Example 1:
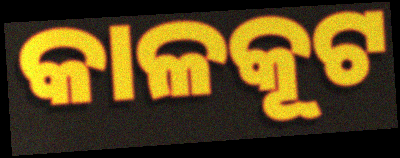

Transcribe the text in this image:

କାଳକୂଟ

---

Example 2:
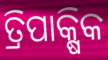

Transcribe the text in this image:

ତ୍ରିପାକ୍ଷିକ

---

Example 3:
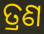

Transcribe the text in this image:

ତ୍ରଣ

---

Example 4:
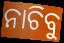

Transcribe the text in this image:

ନାଚିବୁ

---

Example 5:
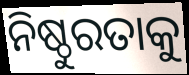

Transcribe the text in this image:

ନିଷ୍ଠୁରତାକୁ